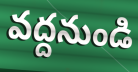
వద్దనుండి